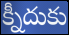
క్నీదుకు